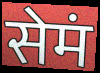
सेमं